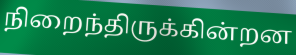
நிறைந்திருக்கின்றன